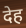
देह